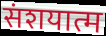
संशयात्म